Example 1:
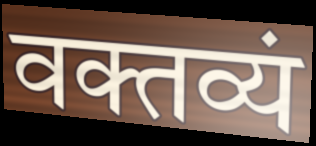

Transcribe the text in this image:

वक्तव्यं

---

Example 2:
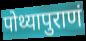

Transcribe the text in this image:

पोथ्यापुराणं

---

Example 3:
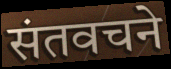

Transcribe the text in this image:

संतवचने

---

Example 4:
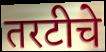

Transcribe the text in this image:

तरटीचे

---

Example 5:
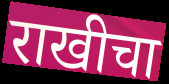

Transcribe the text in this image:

राखीचा